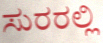
ಸುರರಲ್ಲಿ